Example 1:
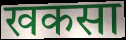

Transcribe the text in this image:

खकसा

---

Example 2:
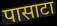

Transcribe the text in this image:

पासाटा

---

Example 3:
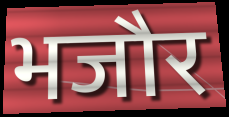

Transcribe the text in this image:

भजौर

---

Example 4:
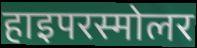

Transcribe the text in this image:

हाइपरस्मोलर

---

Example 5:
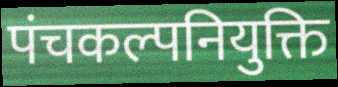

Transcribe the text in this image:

पंचकल्पनियुक्ति